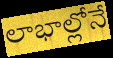
లాభాల్లోనే